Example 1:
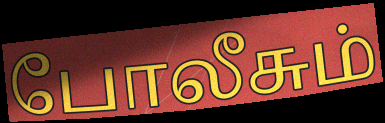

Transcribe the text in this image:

போலீசும்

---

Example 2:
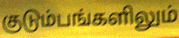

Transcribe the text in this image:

குடும்பங்களிலும்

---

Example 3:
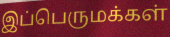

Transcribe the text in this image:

இப்பெருமக்கள்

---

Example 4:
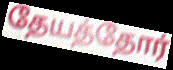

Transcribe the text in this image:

தேயத்தோர்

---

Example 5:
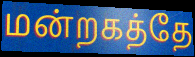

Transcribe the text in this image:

மன்றகத்தே